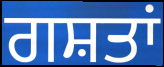
ਗਸ਼ਤਾਂ